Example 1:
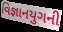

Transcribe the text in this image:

વિજ્ઞાનયુગની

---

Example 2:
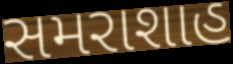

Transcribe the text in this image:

સમરાશાહ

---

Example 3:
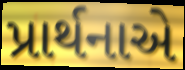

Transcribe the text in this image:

પ્રાર્થનાએ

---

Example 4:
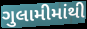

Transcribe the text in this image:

ગુલામીમાંથી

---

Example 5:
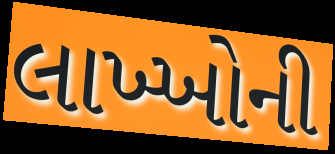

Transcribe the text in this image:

લાખ્ખોની